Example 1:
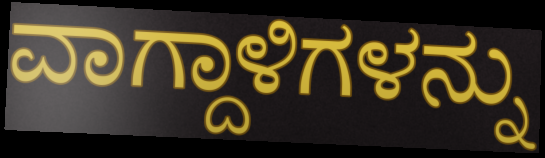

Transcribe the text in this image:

ವಾಗ್ದಾಳಿಗಳನ್ನು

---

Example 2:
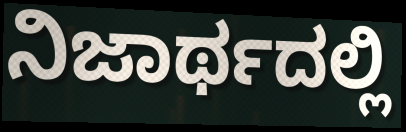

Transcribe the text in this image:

ನಿಜಾರ್ಥದಲ್ಲಿ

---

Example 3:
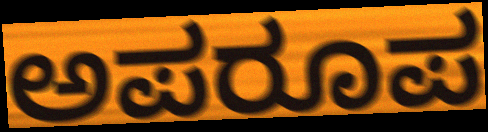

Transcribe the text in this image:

ಅಪರೂಪ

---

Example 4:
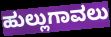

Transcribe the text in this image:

ಹುಲ್ಲುಗಾವಲು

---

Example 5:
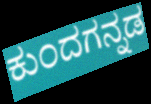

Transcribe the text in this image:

ಕುಂದಗನ್ನಡ